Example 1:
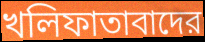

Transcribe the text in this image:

খলিফাতাবাদের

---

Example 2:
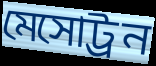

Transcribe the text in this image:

মেসোট্রন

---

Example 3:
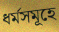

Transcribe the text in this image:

ধর্মসমূহে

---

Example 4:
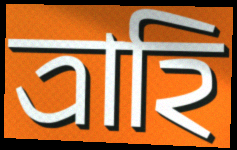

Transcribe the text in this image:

ত্রাহি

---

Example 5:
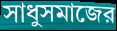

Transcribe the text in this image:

সাধুসমাজের